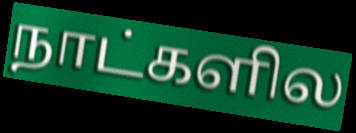
நாட்களில